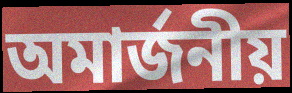
অমার্জনীয়